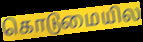
கொடுமையில